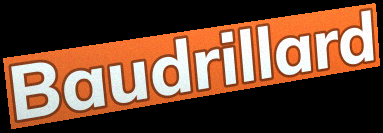
Baudrillard